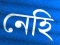
নেহি